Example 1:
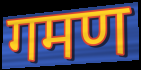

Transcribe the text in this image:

गमण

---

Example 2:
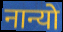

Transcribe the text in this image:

नान्यो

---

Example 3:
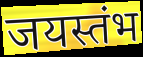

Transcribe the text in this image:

जयस्तंभ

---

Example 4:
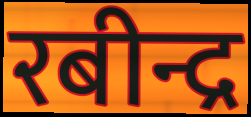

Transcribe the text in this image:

रबीन्द्र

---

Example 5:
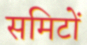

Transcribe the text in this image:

समिटों